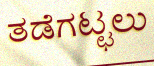
ತಡೆಗಟ್ಟಲು